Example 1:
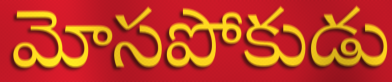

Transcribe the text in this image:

మోసపోకుడు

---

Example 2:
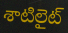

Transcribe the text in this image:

శాటిలైట్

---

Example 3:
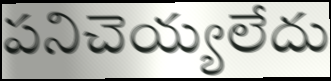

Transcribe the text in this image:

పనిచెయ్యలేదు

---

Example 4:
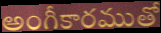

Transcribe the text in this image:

అంగీకారముతో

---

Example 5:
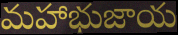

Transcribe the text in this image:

మహాభుజాయ